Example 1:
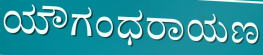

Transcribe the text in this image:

ಯೌಗಂಧರಾಯಣ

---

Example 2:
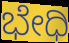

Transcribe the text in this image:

ಭೇಧಿ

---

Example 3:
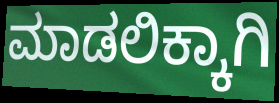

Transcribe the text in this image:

ಮಾಡಲಿಕ್ಕಾಗಿ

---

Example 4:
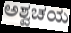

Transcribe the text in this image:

ಅಶ್ವಚಯ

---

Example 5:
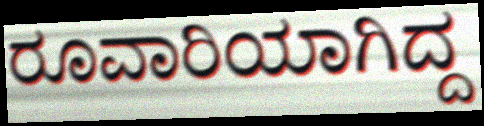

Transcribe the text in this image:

ರೂವಾರಿಯಾಗಿದ್ದ